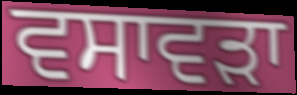
ਵਸਾਵੜਾ